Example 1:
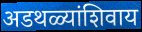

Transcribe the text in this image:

अडथळ्यांशिवाय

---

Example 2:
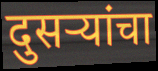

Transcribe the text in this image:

दुसऱ्यांचा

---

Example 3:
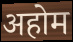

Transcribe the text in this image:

अहोम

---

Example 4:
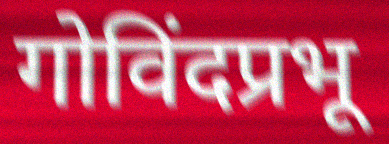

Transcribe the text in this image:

गोविंदप्रभू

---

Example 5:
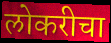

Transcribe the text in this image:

लोकरीचा